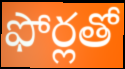
ఫోర్లతో